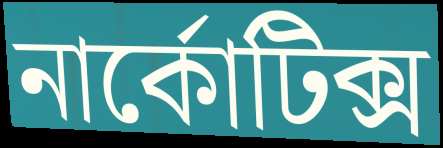
নার্কোটিক্স